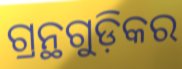
ଗ୍ରନ୍ଥଗୁଡ଼ିକର